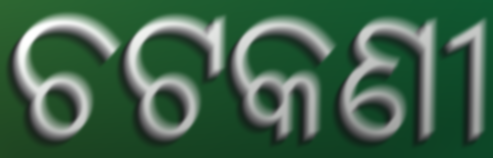
ଚଟକଣୀ